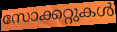
സോക്കറ്റുകൾ